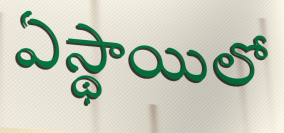
ఏస్థాయిలో